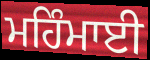
ਮਹਿੰਮਾਈ